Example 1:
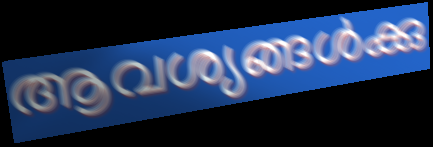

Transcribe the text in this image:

ആവശ്യങ്ങൾക്കു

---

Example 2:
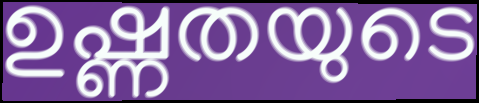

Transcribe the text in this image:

ഉഷ്ണതയുടെ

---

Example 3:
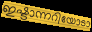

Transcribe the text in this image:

ഇഷ്ടാന്നറിയോടാ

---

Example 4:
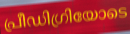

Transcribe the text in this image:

പ്രീഡിഗ്രിയോടെ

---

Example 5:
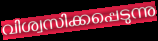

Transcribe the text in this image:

വിശ്വസിക്കപ്പെടുന്നു